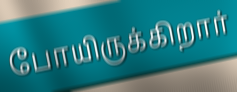
போயிருக்கிறார்